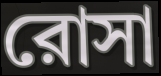
রোসা